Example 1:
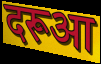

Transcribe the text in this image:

दरूआ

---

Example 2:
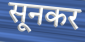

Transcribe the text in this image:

सूनकर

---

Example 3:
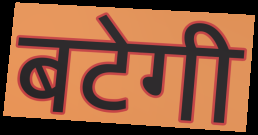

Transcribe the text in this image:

बटेगी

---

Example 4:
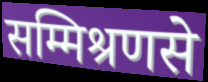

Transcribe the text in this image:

सम्मिश्रणसे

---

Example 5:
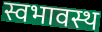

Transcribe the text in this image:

स्वभावस्थ